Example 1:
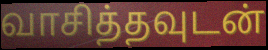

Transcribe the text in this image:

வாசித்தவுடன்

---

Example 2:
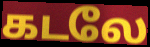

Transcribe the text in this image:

கடலே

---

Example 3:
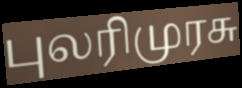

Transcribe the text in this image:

புலரிமுரசு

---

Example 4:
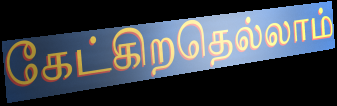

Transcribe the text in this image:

கேட்கிறதெல்லாம்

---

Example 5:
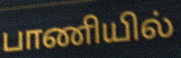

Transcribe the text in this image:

பாணியில்